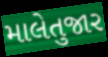
માલેતુજાર